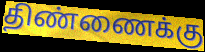
திண்ணைக்கு